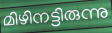
മിഴിനട്ടിരുന്നു